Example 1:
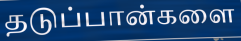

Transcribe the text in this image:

தடுப்பான்களை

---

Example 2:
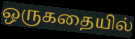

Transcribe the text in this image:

ஒருகதையில்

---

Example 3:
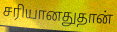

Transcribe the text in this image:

சரியானதுதான்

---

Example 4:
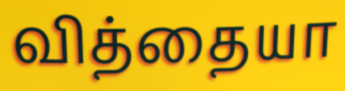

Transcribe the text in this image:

வித்தையா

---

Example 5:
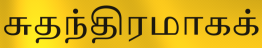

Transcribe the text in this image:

சுதந்திரமாகக்